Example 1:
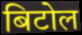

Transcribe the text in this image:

बिटोल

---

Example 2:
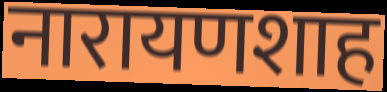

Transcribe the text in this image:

नारायणशाह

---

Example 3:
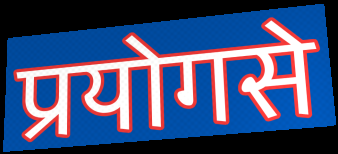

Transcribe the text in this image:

प्रयोगसे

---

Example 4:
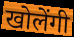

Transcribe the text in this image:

खोलेंगी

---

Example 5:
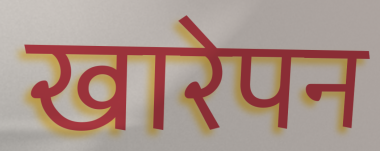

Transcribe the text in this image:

खारेपन